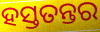
ହସ୍ତତନ୍ତର